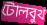
টোলবুথ